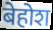
बेहोश